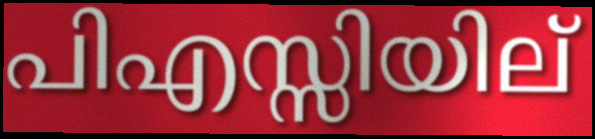
പിഎസ്സിയില്